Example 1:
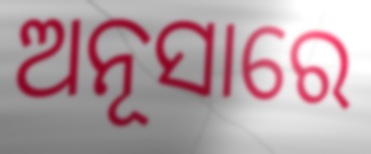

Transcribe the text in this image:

ଅନୂସାରେ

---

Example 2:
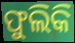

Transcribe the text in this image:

ଫୁଲିକି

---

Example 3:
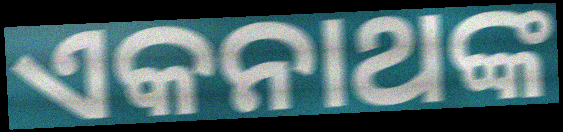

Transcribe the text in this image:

ଏକନାଥଙ୍କ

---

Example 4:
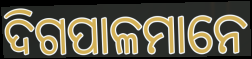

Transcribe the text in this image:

ଦିଗପାଳମାନେ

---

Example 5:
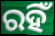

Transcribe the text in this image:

ରହିଁ